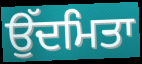
ਉੱਦਮਿਤਾ